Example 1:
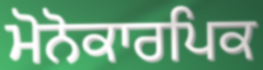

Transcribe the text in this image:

ਮੋਨੋਕਾਰਪਿਕ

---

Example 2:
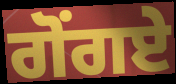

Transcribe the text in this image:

ਗੋਂਗਏ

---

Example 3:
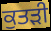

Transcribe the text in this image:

ਕੁਤੜੀ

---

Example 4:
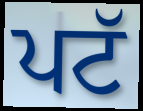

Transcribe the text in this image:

ਪਟੱ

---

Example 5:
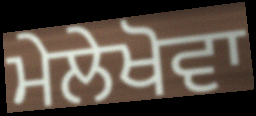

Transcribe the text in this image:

ਮੇਲੇਖੋਵਾ